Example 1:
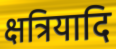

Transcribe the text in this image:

क्षत्रियादि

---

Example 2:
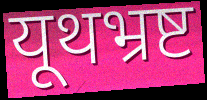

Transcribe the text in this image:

यूथभ्रष्ट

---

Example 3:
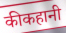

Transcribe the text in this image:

कीकहानी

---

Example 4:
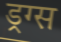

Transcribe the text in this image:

ड्रग्स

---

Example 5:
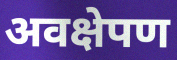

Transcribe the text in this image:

अवक्षेपण